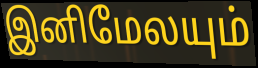
இனிமேலயும்